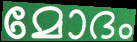
മോദം